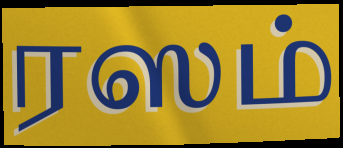
ரஸம்